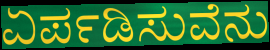
ಏರ್ಪಡಿಸುವೆನು